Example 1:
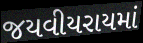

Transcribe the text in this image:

જયવીયરાયમાં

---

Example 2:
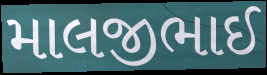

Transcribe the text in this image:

માલજીભાઈ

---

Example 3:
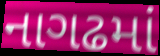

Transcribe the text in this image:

નાગઢમાં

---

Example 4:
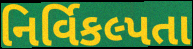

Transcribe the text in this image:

નિર્વિકલ્પતા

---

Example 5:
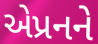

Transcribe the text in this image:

એપ્રનને